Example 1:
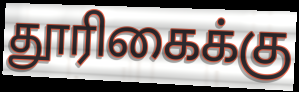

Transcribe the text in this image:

தூரிகைக்கு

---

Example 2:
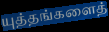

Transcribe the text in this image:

யுத்தங்களைத்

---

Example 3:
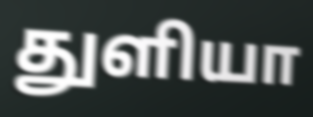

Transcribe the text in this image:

துளியா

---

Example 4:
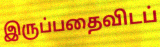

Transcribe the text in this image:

இருப்பதைவிடப்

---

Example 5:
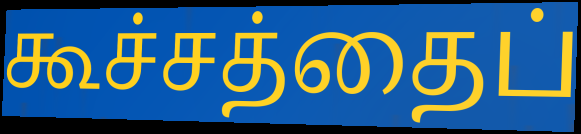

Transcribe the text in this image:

கூச்சத்தைப்